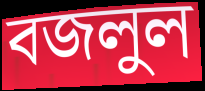
বজলুল